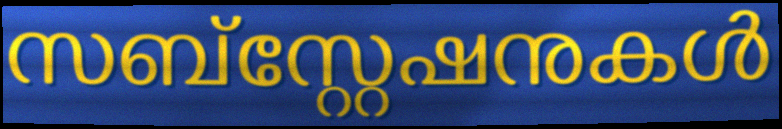
സബ്സ്റ്റേഷനുകൾ